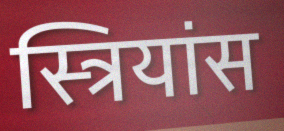
स्त्रियांस